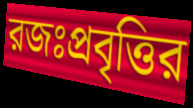
রজঃপ্রবৃত্তির